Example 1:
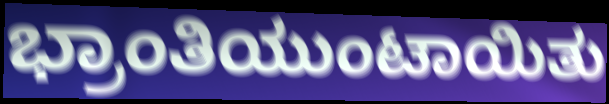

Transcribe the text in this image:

ಭ್ರಾಂತಿಯುಂಟಾಯಿತು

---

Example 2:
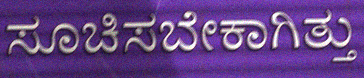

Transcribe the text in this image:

ಸೂಚಿಸಬೇಕಾಗಿತ್ತು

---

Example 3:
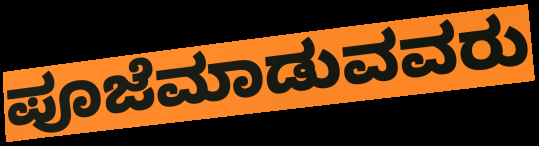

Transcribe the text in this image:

ಪೂಜೆಮಾಡುವವರು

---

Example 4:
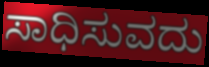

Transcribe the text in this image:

ಸಾಧಿಸುವದು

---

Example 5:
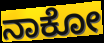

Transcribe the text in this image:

ನಾಕೋ